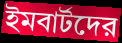
ইমবার্টদের